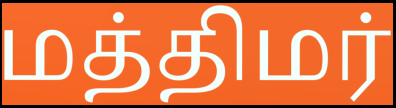
மத்திமர்